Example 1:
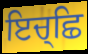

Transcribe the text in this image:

ਇਚ੍ਛਿ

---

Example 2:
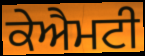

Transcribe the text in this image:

ਕੇਐਮਟੀ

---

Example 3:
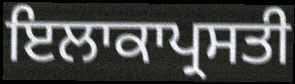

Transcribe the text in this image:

ਇਲਾਕਾਪ੍ਰਸਤੀ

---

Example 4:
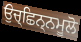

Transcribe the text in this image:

ਉਚ੍ਛਿਨ੍ਨਮੂਲੋ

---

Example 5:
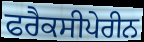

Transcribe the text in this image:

ਫਰੈਕਸੀਪੇਰੀਨ